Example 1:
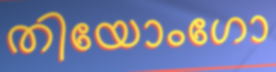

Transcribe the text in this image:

തിയോംഗോ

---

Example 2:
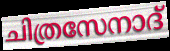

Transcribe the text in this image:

ചിത്രസേനാദ്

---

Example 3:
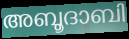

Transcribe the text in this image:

അബൂദാബി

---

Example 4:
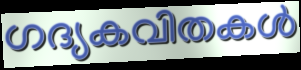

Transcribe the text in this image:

ഗദ്യകവിതകൾ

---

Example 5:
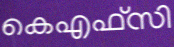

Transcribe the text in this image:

കെഎഫ്സി